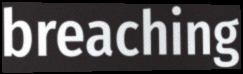
breaching